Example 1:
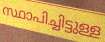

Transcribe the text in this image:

സ്ഥാപിച്ചിട്ടുള്ള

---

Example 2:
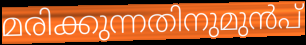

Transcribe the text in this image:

മരിക്കുന്നതിനുമുൻപ്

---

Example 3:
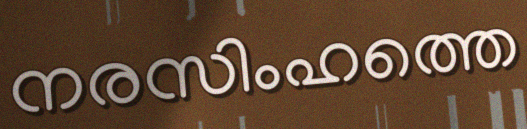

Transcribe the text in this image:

നരസിംഹത്തെ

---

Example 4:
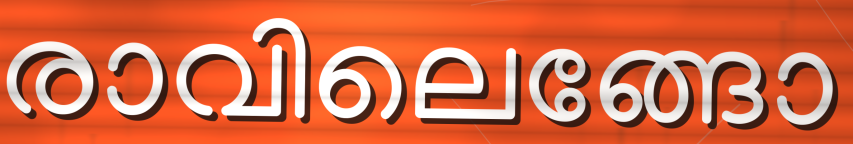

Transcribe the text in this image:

രാവിലെങ്ങോ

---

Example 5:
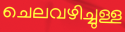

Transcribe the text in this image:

ചെലവഴിച്ചുള്ള